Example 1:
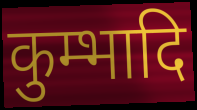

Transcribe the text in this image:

कुम्भादि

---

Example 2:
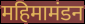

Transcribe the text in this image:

महिमामंडन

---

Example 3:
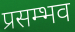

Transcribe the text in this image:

प्रसम्भव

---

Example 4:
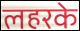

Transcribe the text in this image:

लहरके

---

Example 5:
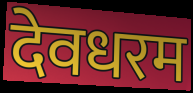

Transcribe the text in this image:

देवधरम